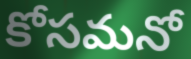
కోసమనో